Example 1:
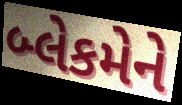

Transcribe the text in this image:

બ્લેકમેને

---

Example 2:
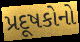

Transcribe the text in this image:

પ્રદૂષકોનો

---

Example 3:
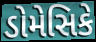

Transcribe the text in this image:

ડોમેસિકે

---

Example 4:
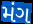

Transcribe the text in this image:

મંગ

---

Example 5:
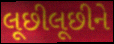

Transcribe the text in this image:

લૂછીલૂછીને